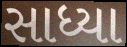
સાધ્યા